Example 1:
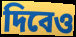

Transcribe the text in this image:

দিবেও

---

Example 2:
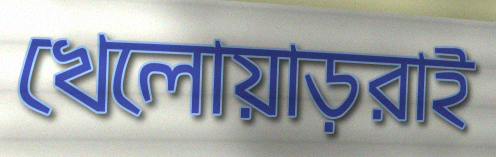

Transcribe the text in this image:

খেলোয়াড়রাই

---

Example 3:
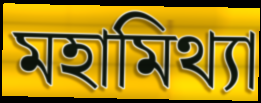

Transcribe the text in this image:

মহামিথ্যা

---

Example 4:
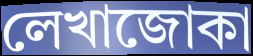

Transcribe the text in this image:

লেখাজোকা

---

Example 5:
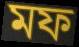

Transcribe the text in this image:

মফ